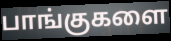
பாங்குகளை